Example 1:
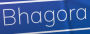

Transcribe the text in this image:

Bhagora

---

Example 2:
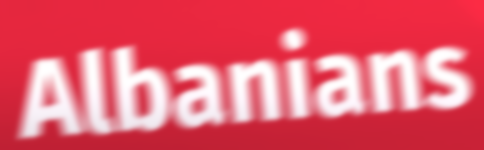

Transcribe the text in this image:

Albanians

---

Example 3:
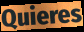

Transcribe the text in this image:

Quieres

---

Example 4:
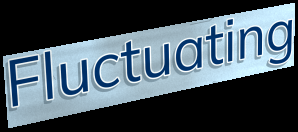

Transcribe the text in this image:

Fluctuating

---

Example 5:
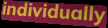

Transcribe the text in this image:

individually